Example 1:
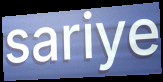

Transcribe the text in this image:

sariye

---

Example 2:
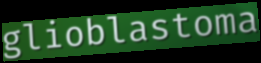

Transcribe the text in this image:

glioblastoma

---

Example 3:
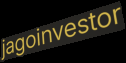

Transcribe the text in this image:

jagoinvestor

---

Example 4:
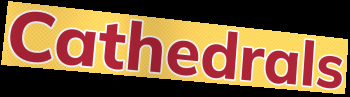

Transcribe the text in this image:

Cathedrals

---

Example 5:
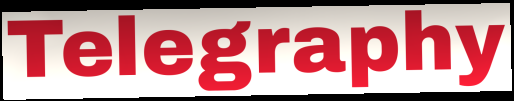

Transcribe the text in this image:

Telegraphy